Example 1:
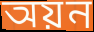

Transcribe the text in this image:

অয়ন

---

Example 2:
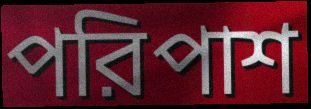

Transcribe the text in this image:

পরিপাশ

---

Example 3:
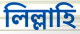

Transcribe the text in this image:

লিল্লাহি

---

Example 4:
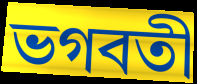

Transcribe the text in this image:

ভগবতী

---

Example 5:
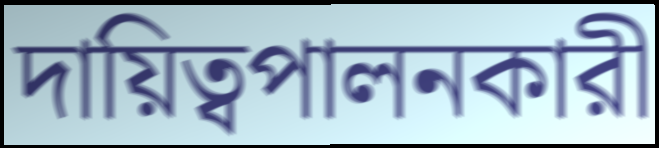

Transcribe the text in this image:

দায়িত্বপালনকারী